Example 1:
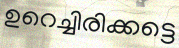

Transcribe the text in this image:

ഉറെച്ചിരിക്കട്ടെ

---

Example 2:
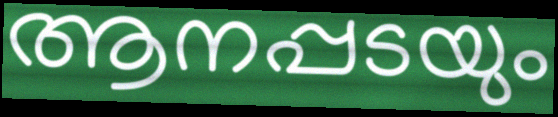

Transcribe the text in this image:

ആനപ്പടയും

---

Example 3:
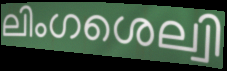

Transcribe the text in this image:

ലിംഗശെല്വി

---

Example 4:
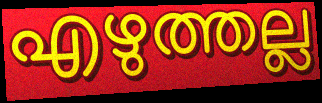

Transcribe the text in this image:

എഴുത്തല്ല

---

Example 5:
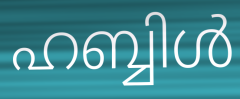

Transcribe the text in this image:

ഹബ്ബിൾ